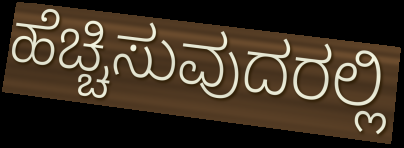
ಹೆಚ್ಚಿಸುವುದರಲ್ಲಿ